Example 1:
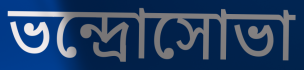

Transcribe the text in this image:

ভন্দ্রোসোভা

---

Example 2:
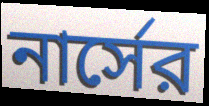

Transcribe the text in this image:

নার্সের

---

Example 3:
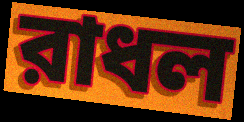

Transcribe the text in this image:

রাধল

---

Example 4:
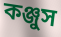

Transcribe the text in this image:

কঞ্জুস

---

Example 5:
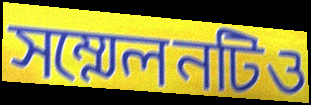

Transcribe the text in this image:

সম্মেলনটিও